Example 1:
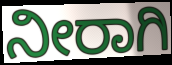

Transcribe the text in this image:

ನೀರಾಗಿ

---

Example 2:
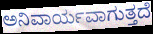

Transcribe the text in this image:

ಅನಿವಾರ್ಯವಾಗುತ್ತದೆ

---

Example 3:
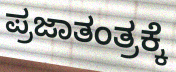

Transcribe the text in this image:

ಪ್ರಜಾತಂತ್ರಕ್ಕೆ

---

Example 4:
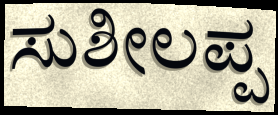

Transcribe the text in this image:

ಸುಶೀಲಪ್ಪ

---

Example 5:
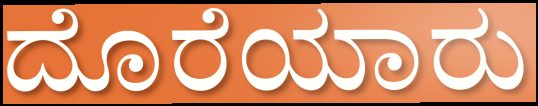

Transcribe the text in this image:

ದೊರೆಯಾರು